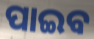
ପାଇବ